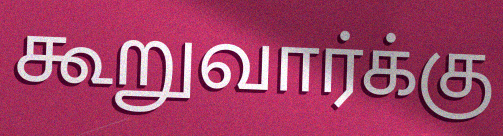
கூறுவார்க்கு